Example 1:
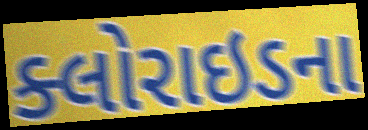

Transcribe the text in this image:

ક્લોરાઇડના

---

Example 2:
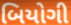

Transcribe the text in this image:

બિયોગી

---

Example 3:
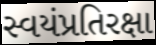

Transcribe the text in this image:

સ્વયંપ્રતિરક્ષા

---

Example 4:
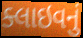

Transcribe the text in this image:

ક્લાઇવનું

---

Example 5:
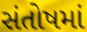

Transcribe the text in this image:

સંતોષમાં